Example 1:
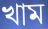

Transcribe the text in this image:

খাম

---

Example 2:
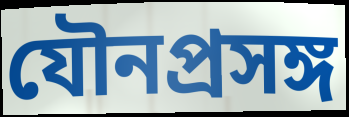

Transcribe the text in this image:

যৌনপ্রসঙ্গ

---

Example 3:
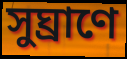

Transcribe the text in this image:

সুঘ্রাণে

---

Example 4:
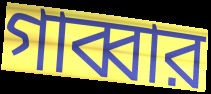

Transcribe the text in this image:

গাব্বার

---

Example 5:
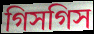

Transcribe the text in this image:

গিসগিস